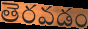
తెరవడం